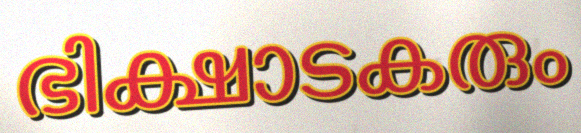
ഭിക്ഷാടകരും